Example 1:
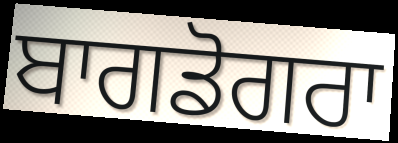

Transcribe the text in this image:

ਬਾਗਡੋਗਰਾ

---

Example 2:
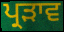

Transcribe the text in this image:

ਪ੍ਰੜਾਵ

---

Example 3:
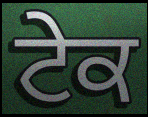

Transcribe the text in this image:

ਟੇਕ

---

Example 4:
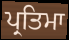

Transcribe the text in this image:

ਪ੍ਰਤਿਮਾ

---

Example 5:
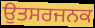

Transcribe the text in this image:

ਉਤਸਰਜਨਕ